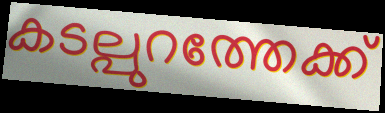
കടല്പുറത്തേക്ക്